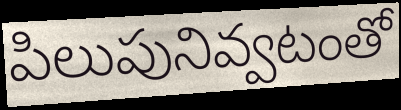
పిలుపునివ్వటంతో